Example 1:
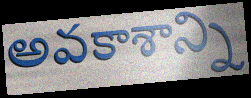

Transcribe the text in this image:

అవకాశాన్ని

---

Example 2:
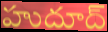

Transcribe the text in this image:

హుదూద్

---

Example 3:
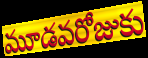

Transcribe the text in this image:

మూడవరోజుకు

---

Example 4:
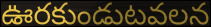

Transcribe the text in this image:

ఊరకుండుటవలన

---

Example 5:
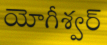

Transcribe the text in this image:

యోగీశ్వర్